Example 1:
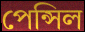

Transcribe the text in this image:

পেন্সিল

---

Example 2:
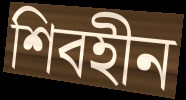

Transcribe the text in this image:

শিবহীন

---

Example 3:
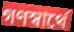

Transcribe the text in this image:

গণস্বার্থে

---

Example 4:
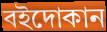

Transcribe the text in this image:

বইদোকান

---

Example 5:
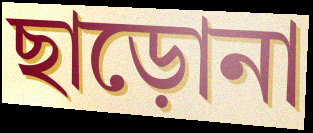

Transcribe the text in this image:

ছাড়োনা